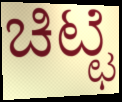
ಚಿಟ್ಟೆ